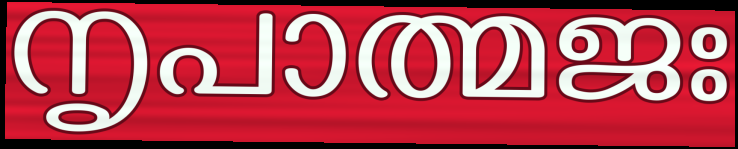
നൃപാത്മജഃ